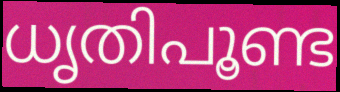
ധൃതിപൂണ്ട